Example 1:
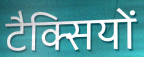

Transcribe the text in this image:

टैक्सियों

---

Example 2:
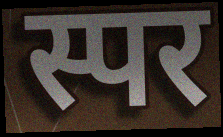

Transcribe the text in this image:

स्पर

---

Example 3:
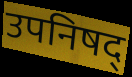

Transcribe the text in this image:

उपनिषद्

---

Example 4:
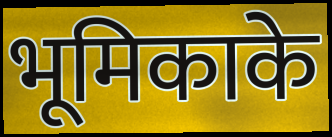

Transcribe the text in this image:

भूमिकाके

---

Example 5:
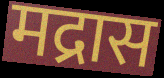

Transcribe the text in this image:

मद्रास